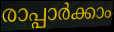
രാപ്പാർക്കാം